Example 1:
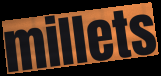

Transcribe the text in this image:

millets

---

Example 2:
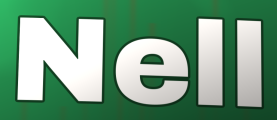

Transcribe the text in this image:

Nell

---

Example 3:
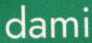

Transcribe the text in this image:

dami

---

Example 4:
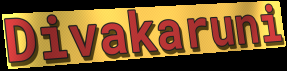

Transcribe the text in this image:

Divakaruni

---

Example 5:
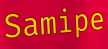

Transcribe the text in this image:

Samipe